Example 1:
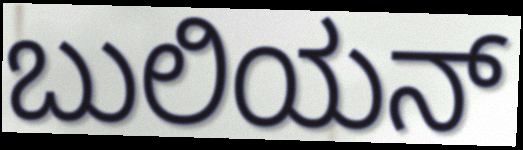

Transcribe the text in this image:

ಬುಲಿಯನ್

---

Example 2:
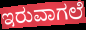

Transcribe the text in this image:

ಇರುವಾಗಲೆ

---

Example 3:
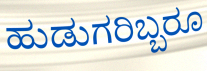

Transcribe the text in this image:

ಹುಡುಗರಿಬ್ಬರೂ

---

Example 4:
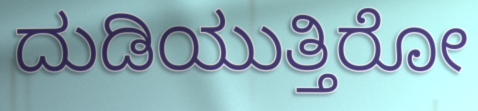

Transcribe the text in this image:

ದುಡಿಯುತ್ತಿರೋ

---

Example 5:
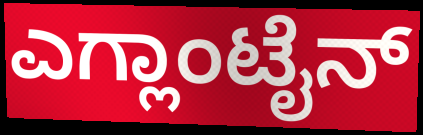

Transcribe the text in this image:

ಎಗ್ಲಾಂಟೈನ್